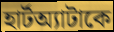
হার্টঅ্যাটাকে